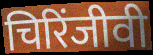
चिरिंजीवी